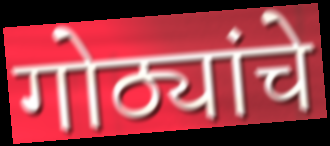
गोठ्यांचे